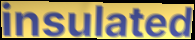
insulated